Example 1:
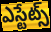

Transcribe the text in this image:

ఎస్టేట్స్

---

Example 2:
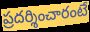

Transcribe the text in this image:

ప్రదర్శించారంటే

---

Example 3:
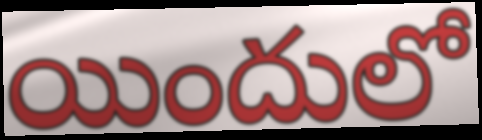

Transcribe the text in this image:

యిందులో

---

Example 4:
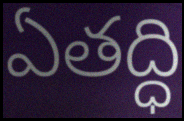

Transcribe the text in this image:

ఏతద్ధి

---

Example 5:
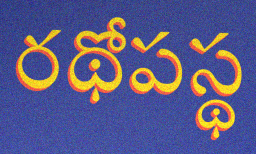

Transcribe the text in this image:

రథోపస్థ